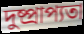
দুষ্প্রাপ্যতা